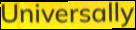
Universally